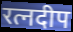
रत्नदीप